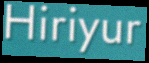
Hiriyur